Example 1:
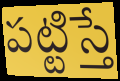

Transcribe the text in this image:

పట్టిస్తే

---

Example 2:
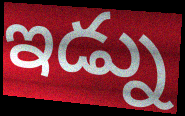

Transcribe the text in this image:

ఇడ్ను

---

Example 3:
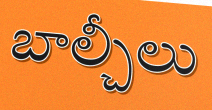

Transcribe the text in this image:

బాల్చీలు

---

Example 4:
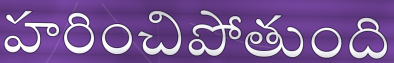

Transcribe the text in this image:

హరించిపోతుంది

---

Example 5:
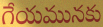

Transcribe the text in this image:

గేయమునకు